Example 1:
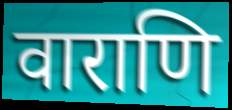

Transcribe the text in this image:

वाराणि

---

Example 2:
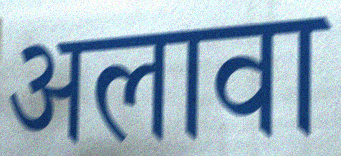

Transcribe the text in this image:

अलावा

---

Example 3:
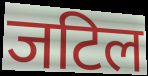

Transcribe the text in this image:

जटिल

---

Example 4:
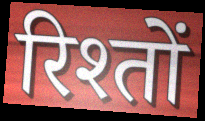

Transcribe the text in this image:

रिश्तों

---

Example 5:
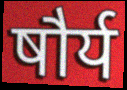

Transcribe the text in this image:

षौर्य